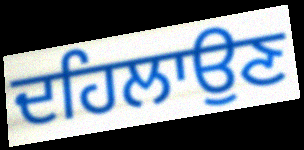
ਦਹਿਲਾਉਣ